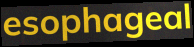
esophageal